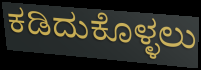
ಕಡಿದುಕೊಳ್ಳಲು